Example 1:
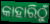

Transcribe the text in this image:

କାହାରିଠୁଁ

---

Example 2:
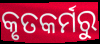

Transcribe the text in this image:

କୃତକର୍ମରୁ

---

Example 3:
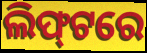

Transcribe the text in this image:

ଲିଫ୍‍ଟରେ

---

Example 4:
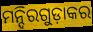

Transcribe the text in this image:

ମନ୍ଦିରଗୁଡ଼ାକର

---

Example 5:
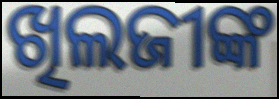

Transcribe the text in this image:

ଖିଲଜୀଙ୍କ